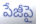
పేజీపై